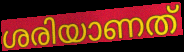
ശരിയാണത്